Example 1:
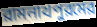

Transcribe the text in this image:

রামনাথপুরমের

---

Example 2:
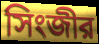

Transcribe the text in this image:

সিংজীর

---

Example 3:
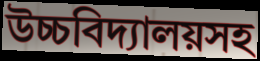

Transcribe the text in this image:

উচ্চবিদ্যালয়সহ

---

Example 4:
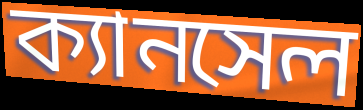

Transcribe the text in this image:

ক্যানসেল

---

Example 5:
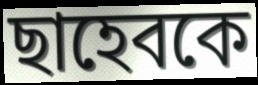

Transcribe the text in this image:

ছাহেবকে